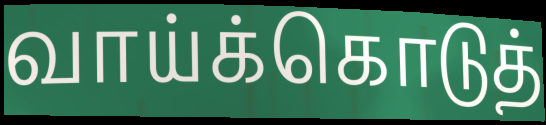
வாய்க்கொடுத்